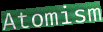
Atomism